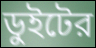
ডুইটের